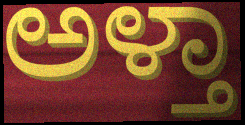
ಅಳ್ತಾ